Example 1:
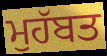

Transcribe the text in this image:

ਮੁਹੱਬਤ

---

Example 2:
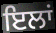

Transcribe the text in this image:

ਇਲਾਂ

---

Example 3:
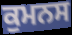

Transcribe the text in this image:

ਕੁਮਨਸ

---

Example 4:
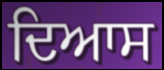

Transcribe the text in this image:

ਦਿਆਸ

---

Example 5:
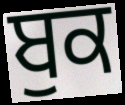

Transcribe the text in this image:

ਬੁਕ